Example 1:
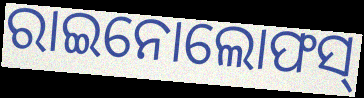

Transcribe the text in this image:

ରାଇନୋଲୋଫସ୍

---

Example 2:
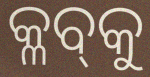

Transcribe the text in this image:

କ୍ଳବ୍‍କୁ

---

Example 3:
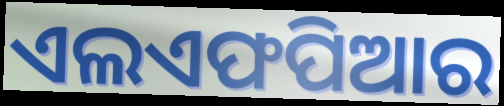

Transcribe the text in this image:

ଏଲଏଫପିଆର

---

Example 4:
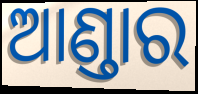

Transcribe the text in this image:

ଆଣ୍ଡାର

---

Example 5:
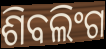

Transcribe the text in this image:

ଶିବଲିଂଗ